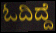
ಓದಿದ್ದೆ